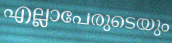
എല്ലാപേരുടെയും